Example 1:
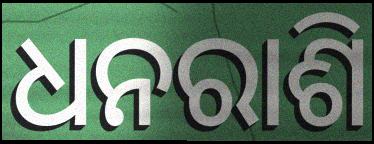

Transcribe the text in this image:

ଧନରାଶି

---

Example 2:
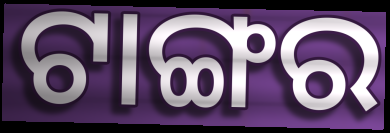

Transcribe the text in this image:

ଟାଙ୍ଗର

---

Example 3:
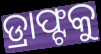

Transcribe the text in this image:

ଡ୍ରାଫ୍ଟକୁ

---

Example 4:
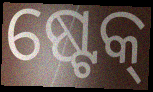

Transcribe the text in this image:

ଷ୍ଟେକ୍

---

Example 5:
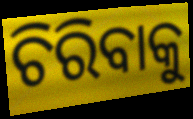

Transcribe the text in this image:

ଚିରିବାକୁ